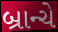
બ્રાન્ચે